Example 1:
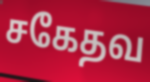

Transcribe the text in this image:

சகேதவ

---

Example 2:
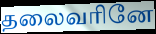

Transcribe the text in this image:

தலைவரினே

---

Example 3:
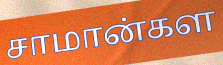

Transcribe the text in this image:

சாமான்கள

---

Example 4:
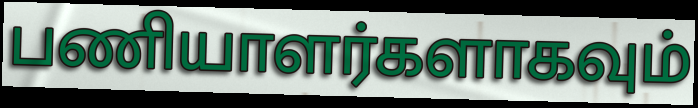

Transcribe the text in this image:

பணியாளர்களாகவும்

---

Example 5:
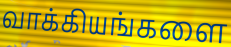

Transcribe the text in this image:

வாக்கியங்களை